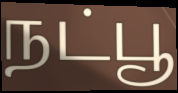
நட்பூ